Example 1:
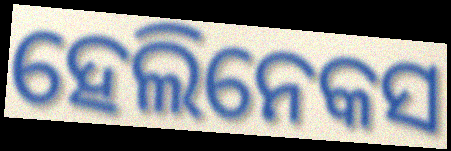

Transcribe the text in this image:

ହେଲିନେକସ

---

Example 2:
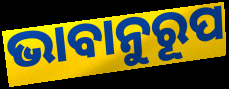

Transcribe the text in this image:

ଭାବାନୁରୂପ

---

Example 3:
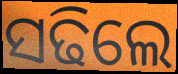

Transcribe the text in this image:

ସଢିଲେ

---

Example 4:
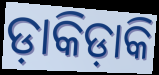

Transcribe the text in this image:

ଡ଼ାକିଡ଼ାକି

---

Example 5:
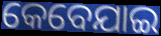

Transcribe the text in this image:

କେବେଯାଇ